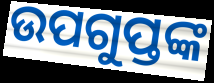
ଉପଗୁପ୍ତଙ୍କ